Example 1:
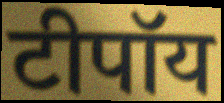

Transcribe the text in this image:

टीपॉय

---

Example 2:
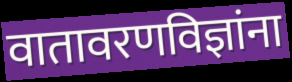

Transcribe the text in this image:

वातावरणविज्ञांना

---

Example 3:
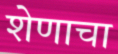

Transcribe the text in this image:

शेणाचा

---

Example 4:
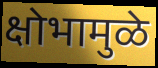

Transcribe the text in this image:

क्षोभामुळे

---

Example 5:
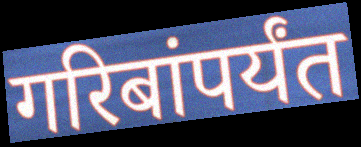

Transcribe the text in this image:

गरिबांपर्यंत